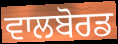
ਵਾਲਬੋਰਡ